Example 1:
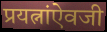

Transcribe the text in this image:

प्रयत्नांऐवजी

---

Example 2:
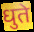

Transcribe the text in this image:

धुते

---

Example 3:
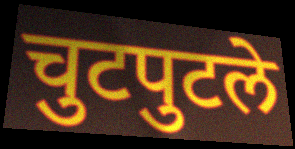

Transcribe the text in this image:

चुटपुटले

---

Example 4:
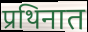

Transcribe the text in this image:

प्रथिनात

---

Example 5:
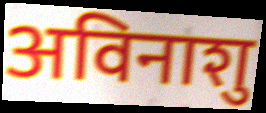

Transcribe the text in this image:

अविनाशु